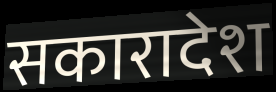
सकारादेश